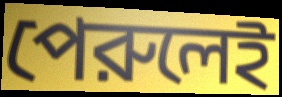
পেরুলেই